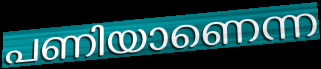
പണിയാണെന്ന